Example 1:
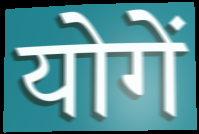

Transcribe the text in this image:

योगें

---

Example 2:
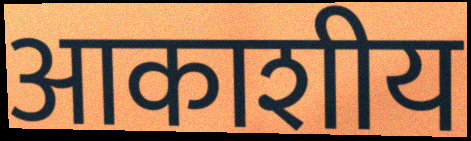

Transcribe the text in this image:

आकाशीय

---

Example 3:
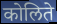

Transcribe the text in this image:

कोलिते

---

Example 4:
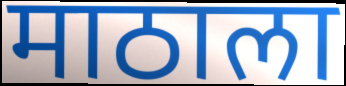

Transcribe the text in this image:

माठाला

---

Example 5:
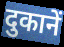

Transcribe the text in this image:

दुकानें